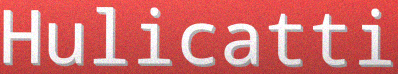
Hulicatti